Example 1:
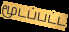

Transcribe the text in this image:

மூடப்பட்ட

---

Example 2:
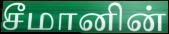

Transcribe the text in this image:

சீமானின்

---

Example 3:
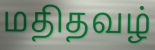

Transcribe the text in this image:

மதிதவழ்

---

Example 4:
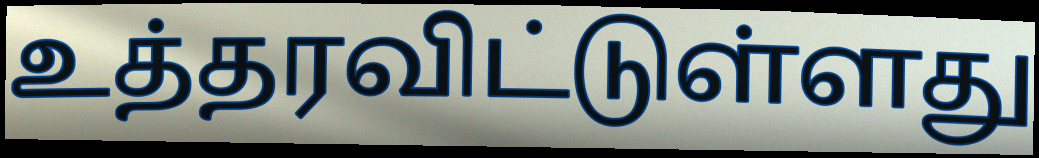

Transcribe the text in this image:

உத்தரவிட்டுள்ளது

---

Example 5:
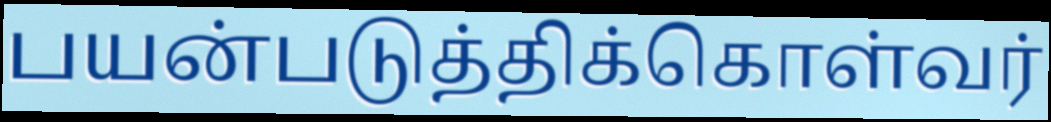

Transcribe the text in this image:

பயன்படுத்திக்கொள்வர்